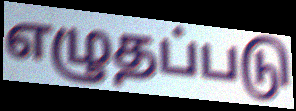
எழுதப்படு